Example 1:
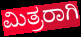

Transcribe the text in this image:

ಮಿತ್ರರಾಗಿ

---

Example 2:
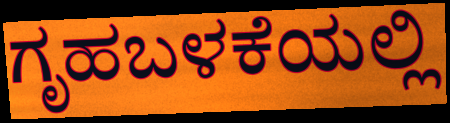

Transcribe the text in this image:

ಗೃಹಬಳಕೆಯಲ್ಲಿ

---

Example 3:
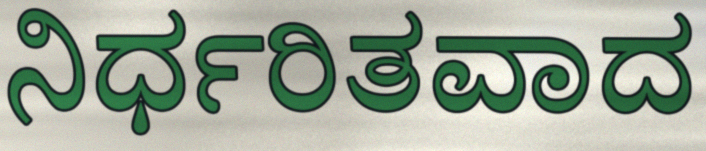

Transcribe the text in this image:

ನಿರ್ಧರಿತವಾದ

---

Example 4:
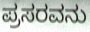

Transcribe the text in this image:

ಪ್ರಸರವನು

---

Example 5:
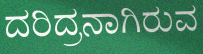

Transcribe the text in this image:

ದರಿದ್ರನಾಗಿರುವ